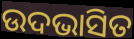
ଉଦଭାସିତ